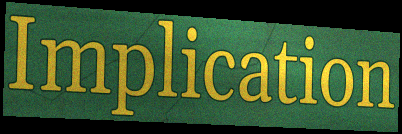
Implication